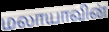
மலாயாவின்